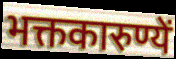
भक्तकारुण्यें